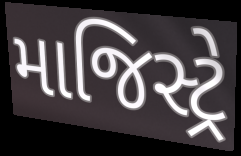
માજિસ્ટ્રે